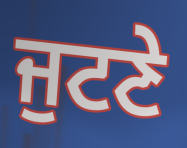
ਜੁਟਣੇ